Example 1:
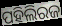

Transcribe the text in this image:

ପହିଲିରଜ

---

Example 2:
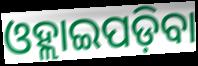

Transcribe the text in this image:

ଓହ୍ଲାଇପଡ଼ିବା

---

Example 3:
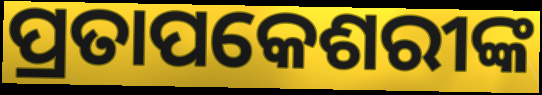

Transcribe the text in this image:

ପ୍ରତାପକେଶରୀଙ୍କ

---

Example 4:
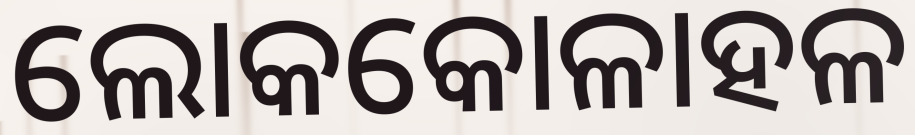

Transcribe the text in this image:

ଲୋକକୋଳାହଳ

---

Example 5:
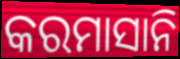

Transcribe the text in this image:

କରମାସାନି